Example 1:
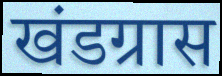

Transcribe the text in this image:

खंडग्रास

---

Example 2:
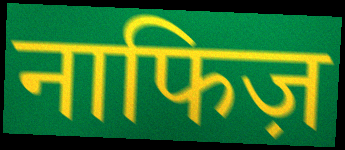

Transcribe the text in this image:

नाफिज़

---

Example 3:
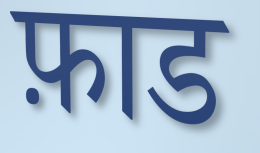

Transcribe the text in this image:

फ़ाड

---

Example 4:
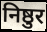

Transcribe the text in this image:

निष्ठुर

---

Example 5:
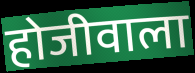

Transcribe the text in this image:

होजीवाला